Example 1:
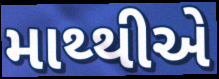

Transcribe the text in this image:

માથ્થીએ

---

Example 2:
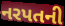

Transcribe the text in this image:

નરપતની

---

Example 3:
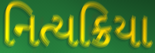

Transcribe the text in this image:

નિત્યક્રિયા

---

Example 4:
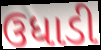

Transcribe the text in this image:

ઉધાડી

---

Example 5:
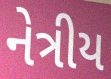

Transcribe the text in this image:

નેત્રીય